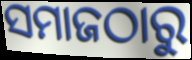
ସମାଜଠାରୁ